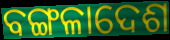
ବଙ୍ଗଳାଦେଶ